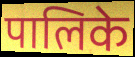
पालिके